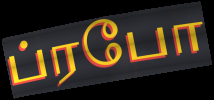
ப்ரபோ